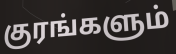
குரங்களும்